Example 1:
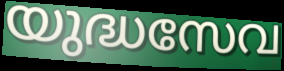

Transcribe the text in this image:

യുദ്ധസേവ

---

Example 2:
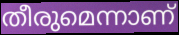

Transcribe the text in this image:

തീരുമെന്നാണ്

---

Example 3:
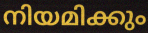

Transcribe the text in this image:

നിയമിക്കും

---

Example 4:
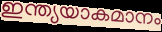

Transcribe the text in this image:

ഇന്ത്യയാകമാനം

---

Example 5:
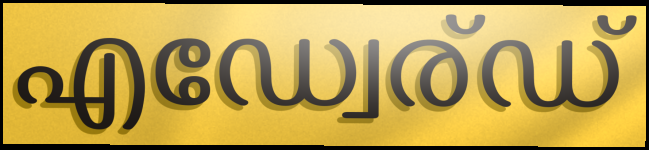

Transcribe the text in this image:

എഡ്വേര്ഡ്